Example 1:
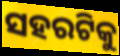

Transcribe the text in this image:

ସହରଟିକୁ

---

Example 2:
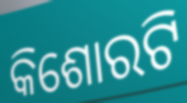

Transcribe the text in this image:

କିଶୋରଟି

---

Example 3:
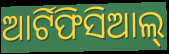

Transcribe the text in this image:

ଆର୍ଟିଫିସିଆଲ୍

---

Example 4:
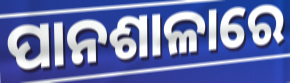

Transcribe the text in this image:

ପାନଶାଳାରେ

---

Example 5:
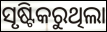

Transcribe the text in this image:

ସୃଷ୍ଟିକରୁଥିଲା